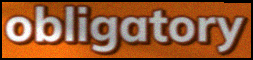
obligatory